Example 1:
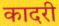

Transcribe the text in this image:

कादरी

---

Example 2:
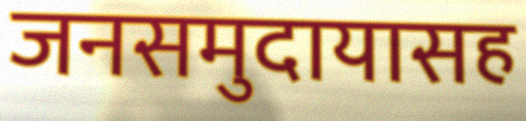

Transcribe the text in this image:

जनसमुदायासह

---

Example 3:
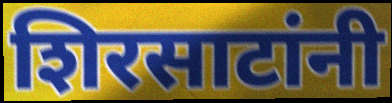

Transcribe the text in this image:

शिरसाटांनी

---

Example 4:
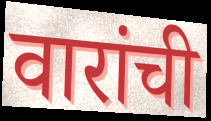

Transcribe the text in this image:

वारांची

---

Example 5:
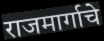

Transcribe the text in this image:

राजमार्गाचे